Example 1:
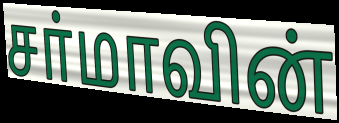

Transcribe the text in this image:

சர்மாவின்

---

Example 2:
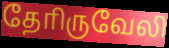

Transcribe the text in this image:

தேரிருவேலி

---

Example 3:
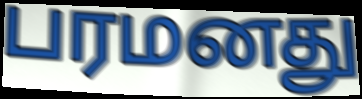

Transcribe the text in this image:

பரமனது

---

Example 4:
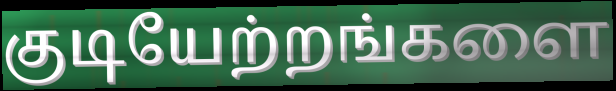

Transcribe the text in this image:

குடியேற்றங்களை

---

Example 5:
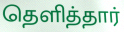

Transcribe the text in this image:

தெளித்தார்